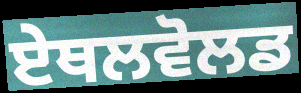
ਏਥਲਵੋਲਡ